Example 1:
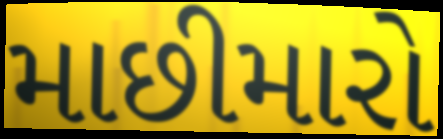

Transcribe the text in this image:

માછીમારો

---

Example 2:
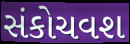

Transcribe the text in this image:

સંકોચવશ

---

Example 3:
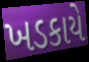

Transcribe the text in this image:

ખડકાયે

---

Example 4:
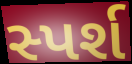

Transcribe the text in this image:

સ્પર્શ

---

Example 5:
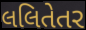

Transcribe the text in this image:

લલિતેતર